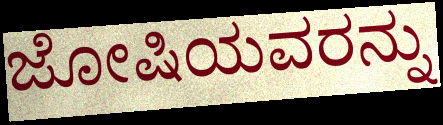
ಜೋಷಿಯವರನ್ನು